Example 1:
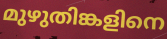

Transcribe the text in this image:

മുഴുതിങ്കളിനെ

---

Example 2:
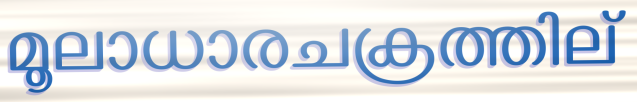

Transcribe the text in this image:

മൂലാധാരചക്രത്തില്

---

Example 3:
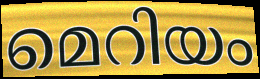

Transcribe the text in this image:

മെറിയം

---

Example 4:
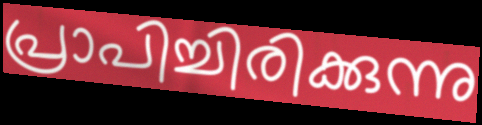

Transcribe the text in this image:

പ്രാപിച്ചിരിക്കുന്നു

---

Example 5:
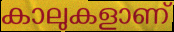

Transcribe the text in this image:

കാലുകളാണ്